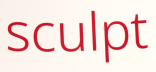
sculpt